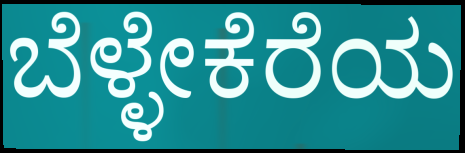
ಬೆಳ್ಳೇಕೆರೆಯ